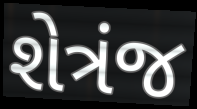
શેત્રંજ